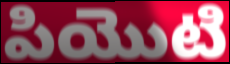
పియొటి